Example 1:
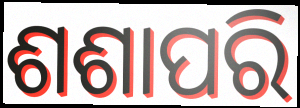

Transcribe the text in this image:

ଶଶାପରି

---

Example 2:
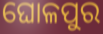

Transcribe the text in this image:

ଘୋଳପୁର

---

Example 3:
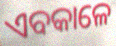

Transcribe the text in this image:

ଏବକାଳେ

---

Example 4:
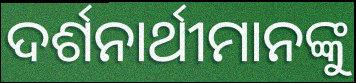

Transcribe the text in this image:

ଦର୍ଶନାର୍ଥୀମାନଙ୍କୁ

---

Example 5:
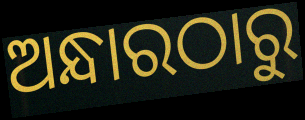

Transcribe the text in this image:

ଅନ୍ଧାରଠାରୁ